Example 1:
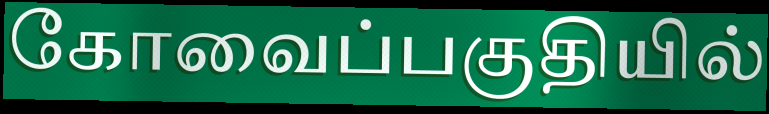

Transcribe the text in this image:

கோவைப்பகுதியில்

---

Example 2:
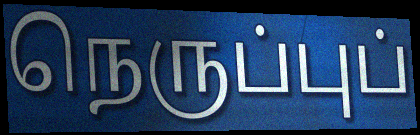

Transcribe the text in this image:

நெருப்புப்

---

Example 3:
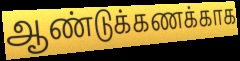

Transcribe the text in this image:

ஆண்டுக்கணக்காக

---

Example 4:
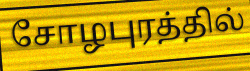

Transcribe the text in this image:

சோழபுரத்தில்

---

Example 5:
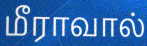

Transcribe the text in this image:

மீராவால்